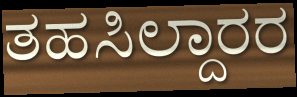
ತಹಸಿಲ್ದಾರರ